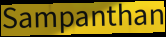
Sampanthan